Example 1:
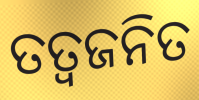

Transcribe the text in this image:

ତତ୍ଵଜନିତ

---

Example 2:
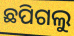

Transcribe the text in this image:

ଛପିଗଲୁ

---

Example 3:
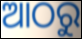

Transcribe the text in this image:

ଆଠରୁ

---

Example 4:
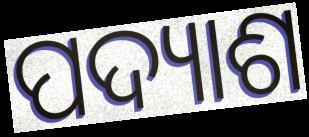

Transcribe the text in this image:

ପଦ୍ୟାଶ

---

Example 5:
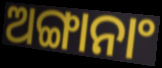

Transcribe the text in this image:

ଅଙ୍ଗାନାଂ